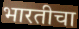
भारतीचा